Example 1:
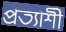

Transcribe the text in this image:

প্রত্যাশী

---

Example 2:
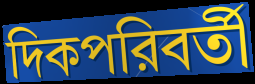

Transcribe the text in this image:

দিকপরিবর্তী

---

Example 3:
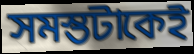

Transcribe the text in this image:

সমস্তটাকেই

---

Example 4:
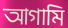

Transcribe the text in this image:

আগামি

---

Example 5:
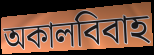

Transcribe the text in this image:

অকালবিবাহ